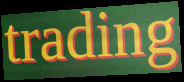
trading